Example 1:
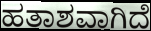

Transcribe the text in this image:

ಹತಾಶವಾಗಿದೆ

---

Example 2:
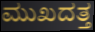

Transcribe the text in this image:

ಮುಖದತ್ತ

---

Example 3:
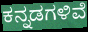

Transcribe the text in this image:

ಕನ್ನಡಗಳಿವೆ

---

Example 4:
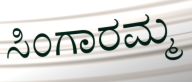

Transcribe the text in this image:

ಸಿಂಗಾರಮ್ಮ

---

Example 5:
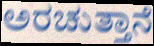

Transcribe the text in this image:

ಅರಚುತ್ತಾನೆ